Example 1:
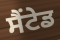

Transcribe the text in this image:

ਸੈਂਟੇਡ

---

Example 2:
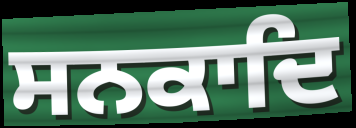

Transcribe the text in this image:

ਸਨਕਾਦਿ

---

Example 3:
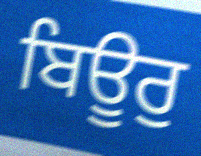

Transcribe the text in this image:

ਬਿਊਰੁ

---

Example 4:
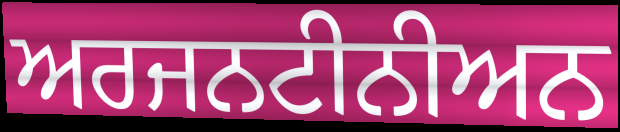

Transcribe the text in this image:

ਅਰਜਨਟੀਨੀਅਨ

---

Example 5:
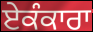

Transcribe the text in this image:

ਏਕੰਕਾਰਾ